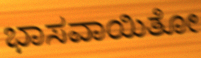
ಭಾಸವಾಯಿತೋ